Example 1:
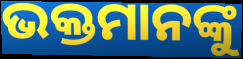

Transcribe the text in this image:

ଭକ୍ତମାନଙ୍କୁ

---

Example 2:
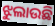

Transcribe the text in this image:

ଝୁଲାଉଛି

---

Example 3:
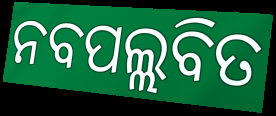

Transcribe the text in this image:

ନବପଲ୍ଲବିତ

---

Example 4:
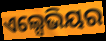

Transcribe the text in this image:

ଏଲ୍ସେଭିୟର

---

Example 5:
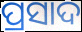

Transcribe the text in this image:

ପ୍ରସାଦ